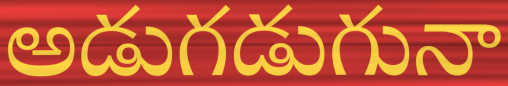
అడుగడుగునా